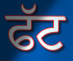
ਫੱਟ